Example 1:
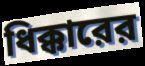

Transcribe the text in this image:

ধিক্কারের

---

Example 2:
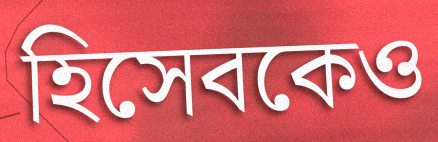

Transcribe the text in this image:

হিসেবকেও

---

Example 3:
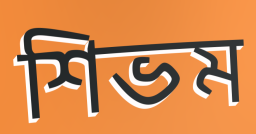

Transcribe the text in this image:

শিভম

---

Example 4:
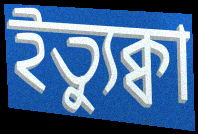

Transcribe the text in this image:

ইত্যুক্বা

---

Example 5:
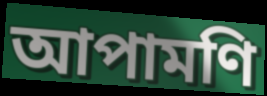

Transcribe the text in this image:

আপামণি